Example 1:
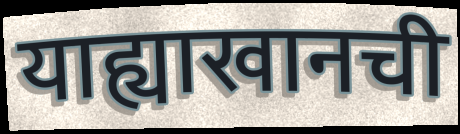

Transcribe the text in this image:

याह्याखानची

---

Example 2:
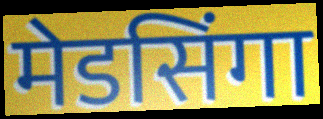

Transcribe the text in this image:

मेडसिंगा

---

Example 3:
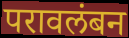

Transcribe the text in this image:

परावलंबन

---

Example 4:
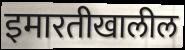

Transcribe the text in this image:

इमारतीखालील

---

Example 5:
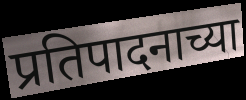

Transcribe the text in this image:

प्रतिपादनाच्या